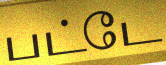
பட்டே